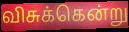
விசுக்கென்று